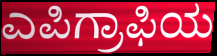
ಎಪಿಗ್ರಾಫಿಯ